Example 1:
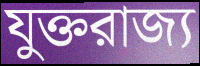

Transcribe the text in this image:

যুক্তরাজ্য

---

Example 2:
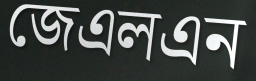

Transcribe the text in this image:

জেএলএন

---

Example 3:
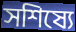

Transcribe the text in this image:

সশিষ্যে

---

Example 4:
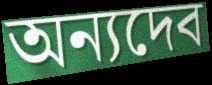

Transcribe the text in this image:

অন্যদেব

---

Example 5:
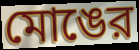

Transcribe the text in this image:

মোঙের